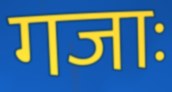
गजाः